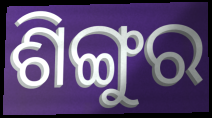
ଶିଙ୍ଗୁର